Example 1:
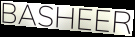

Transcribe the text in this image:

BASHEER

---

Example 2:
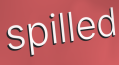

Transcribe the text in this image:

spilled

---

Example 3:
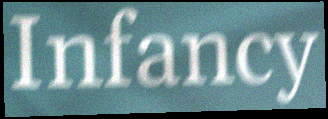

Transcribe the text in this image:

Infancy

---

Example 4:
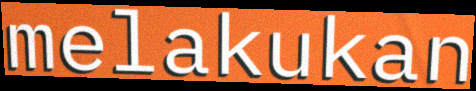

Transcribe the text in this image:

melakukan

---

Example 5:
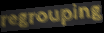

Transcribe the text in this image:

regrouping